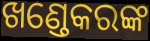
ଖଣ୍ଡେକରଙ୍କ